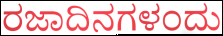
ರಜಾದಿನಗಳಂದು